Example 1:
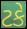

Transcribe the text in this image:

ટકે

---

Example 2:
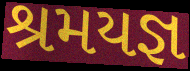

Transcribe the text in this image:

શ્રમયજ્ઞ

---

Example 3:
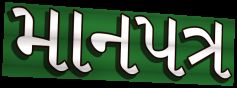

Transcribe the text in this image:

માનપત્ર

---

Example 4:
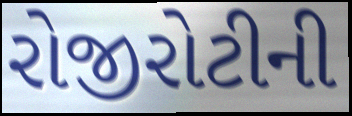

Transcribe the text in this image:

રોજીરોટીની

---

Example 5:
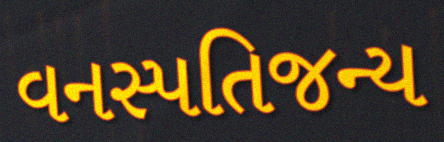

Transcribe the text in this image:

વનસ્પતિજન્ય